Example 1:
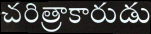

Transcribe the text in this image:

చరిత్రాకారుడు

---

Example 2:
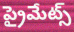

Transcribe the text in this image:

ప్రైమేట్స్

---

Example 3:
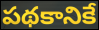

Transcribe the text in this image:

పథకానికే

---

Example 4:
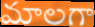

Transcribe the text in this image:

మాలగా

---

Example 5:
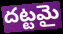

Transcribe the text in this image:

దట్టమై